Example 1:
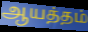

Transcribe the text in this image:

ஆயத்தம்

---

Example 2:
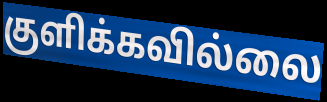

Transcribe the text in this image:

குளிக்கவில்லை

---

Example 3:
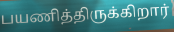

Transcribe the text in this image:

பயணித்திருக்கிறார்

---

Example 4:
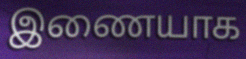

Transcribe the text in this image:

இணையாக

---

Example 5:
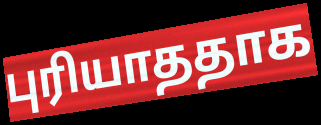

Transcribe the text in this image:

புரியாததாக